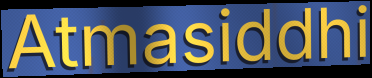
Atmasiddhi